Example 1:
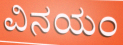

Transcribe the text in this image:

ವಿನಯಂ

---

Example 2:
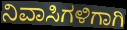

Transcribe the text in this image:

ನಿವಾಸಿಗಳಿಗಾಗಿ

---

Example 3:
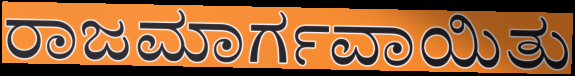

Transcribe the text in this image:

ರಾಜಮಾರ್ಗವಾಯಿತು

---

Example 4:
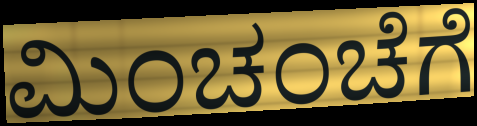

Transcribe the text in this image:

ಮಿಂಚಂಚೆಗೆ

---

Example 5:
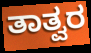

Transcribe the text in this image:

ತಾತ್ವರ